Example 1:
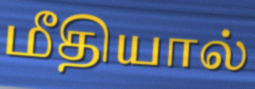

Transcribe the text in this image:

மீதியால்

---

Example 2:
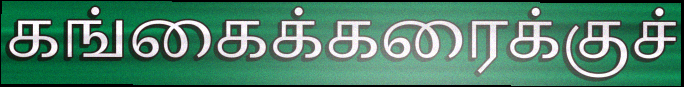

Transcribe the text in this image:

கங்கைக்கரைக்குச்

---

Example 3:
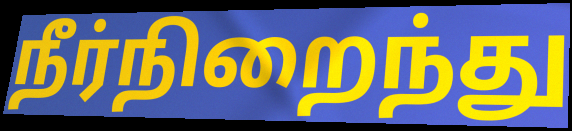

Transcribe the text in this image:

நீர்நிறைந்து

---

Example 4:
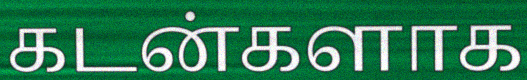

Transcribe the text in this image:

கடன்களாக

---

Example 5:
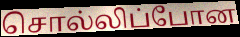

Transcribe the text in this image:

சொல்லிப்போன